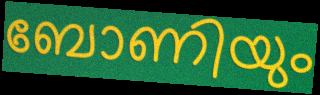
ബോണിയും